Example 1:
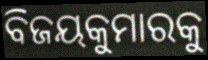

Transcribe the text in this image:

ବିଜୟକୁମାରକୁ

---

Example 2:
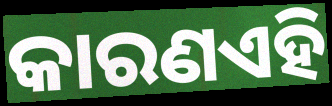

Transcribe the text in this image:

କାରଣଏହି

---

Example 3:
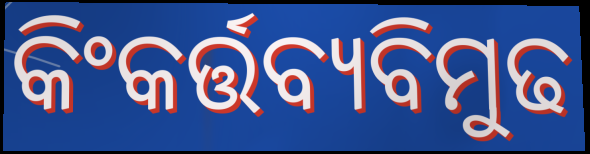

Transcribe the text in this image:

କିଂକର୍ତ୍ତବ୍ଯବିମୁଢ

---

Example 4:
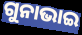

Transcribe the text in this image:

ଗୁନାଭାଇ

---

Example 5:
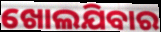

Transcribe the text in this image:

ଖୋଲଯିବାର